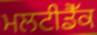
ਮਲਟੀਡੈੱਕ